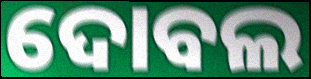
ଦୋବଲ